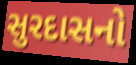
સુરદાસનો